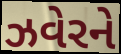
ઝવેરને